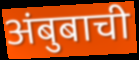
अंबुबाची